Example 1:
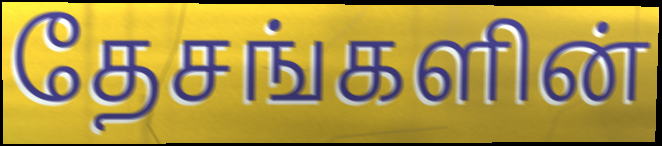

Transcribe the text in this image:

தேசங்களின்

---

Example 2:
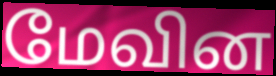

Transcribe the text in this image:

மேவின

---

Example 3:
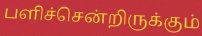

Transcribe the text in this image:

பளிச்சென்றிருக்கும்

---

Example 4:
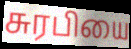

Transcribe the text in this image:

சுரபியை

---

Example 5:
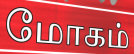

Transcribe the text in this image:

மோகம்